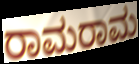
ರಾಮರಾಮ